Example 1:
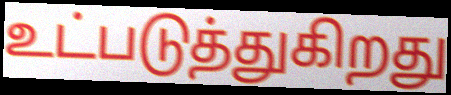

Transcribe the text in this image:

உட்படுத்துகிறது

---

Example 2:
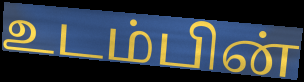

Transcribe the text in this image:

உடம்பின்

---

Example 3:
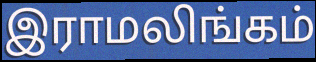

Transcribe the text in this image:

இராமலிங்கம்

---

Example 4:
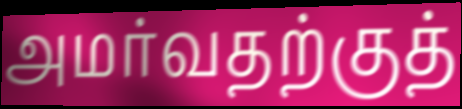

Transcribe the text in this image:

அமர்வதற்குத்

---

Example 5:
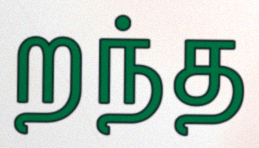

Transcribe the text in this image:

றந்த